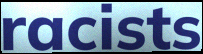
racists